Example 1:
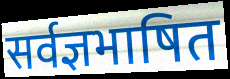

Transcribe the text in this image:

सर्वज्ञभाषित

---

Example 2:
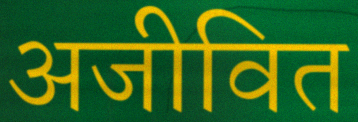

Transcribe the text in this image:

अजीवित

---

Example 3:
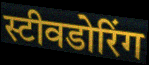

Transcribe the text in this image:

स्टीवडोरिंग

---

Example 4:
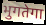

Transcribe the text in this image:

भुगतेगा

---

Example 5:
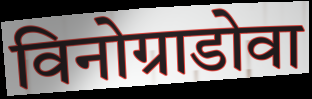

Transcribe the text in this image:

विनोग्राडोवा